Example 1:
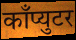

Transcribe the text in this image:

काँप्युटर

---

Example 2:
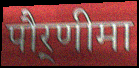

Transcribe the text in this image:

पौर्णीमा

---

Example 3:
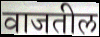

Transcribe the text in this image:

वाजतील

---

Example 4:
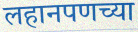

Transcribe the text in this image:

लहानपणच्या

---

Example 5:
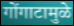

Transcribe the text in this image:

गोंगाटामुळे